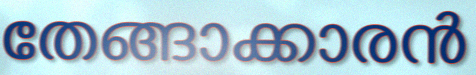
തേങ്ങാക്കാരൻ